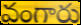
వంగారు